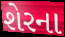
શેરના